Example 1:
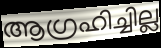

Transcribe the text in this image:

ആഗ്രഹിച്ചില്ല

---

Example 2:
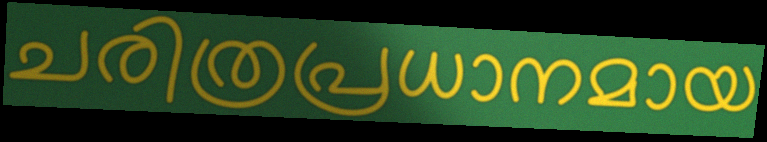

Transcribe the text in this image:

ചരിത്രപ്രധാനമായ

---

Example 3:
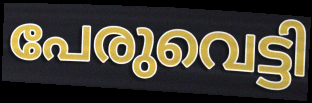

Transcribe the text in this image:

പേരുവെട്ടി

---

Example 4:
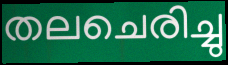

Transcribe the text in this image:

തലചെരിച്ചു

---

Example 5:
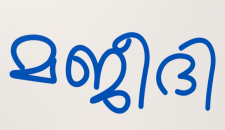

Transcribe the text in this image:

മജീദി